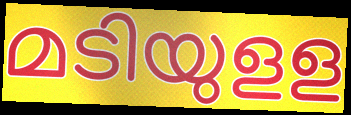
മടിയുളള